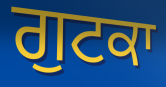
ਗੁਟਕਾ